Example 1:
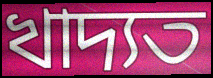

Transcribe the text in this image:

খাদ্যত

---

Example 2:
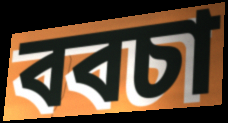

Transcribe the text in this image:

ববচা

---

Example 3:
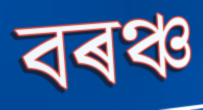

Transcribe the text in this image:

বৰঞ্চ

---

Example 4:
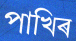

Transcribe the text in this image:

পাখিৰ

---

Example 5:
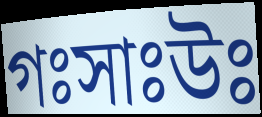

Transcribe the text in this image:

গঃসাঃউঃ